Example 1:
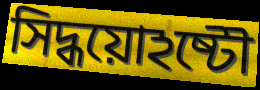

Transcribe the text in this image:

সিদ্ধয়োঽষ্টৌ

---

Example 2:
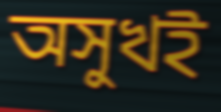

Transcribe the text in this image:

অসুখই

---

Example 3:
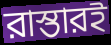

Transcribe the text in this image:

রাস্তারই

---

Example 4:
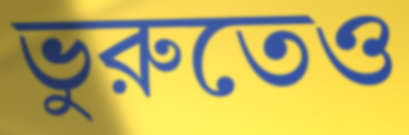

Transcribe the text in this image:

ভুরুতেও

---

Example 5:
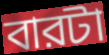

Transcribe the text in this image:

বারটা